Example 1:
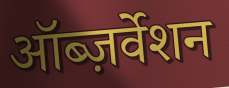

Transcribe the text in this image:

ऑब्ज़र्वेशन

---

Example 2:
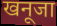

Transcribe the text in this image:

खनूजा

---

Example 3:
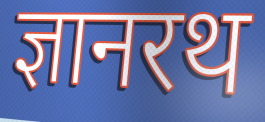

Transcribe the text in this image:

ज्ञानरथ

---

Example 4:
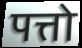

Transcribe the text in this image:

पत्तो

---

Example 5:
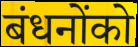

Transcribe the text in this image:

बंधनोंको